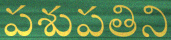
పశుపతిని